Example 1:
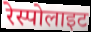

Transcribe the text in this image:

रेस्पोलाइट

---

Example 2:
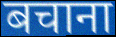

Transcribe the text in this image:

बचाना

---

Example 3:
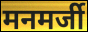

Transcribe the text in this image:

मनमर्जी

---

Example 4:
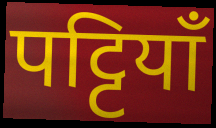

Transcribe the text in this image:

पट्टियाँ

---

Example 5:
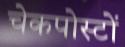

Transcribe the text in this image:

चेकपोस्टों